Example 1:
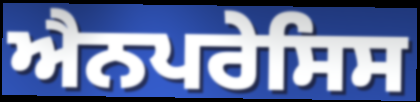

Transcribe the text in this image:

ਐਨਪਰੇਸਿਸ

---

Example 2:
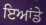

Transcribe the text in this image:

ਇਆਂਡੇ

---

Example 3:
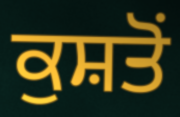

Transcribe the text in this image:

ਕੁਸ਼ਤੋਂ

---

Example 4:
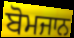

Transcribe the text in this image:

ਬੋਮਜਾਨ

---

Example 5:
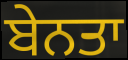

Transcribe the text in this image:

ਬੇਨਤਾ